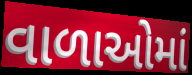
વાળાઓમાં